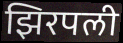
झिरपली